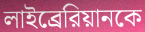
লাইব্রেরিয়ানকে